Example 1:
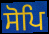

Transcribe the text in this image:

ਸੋਪਿ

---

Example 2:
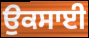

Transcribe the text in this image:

ਉਕਸਾਈ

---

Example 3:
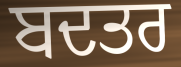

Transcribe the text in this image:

ਬਦਤਰ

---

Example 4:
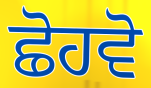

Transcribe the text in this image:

ਛੋਹਵੋ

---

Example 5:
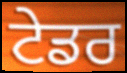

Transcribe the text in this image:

ਟੇਡਰ